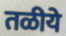
तळीये